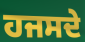
ਹਜਸਦੇ